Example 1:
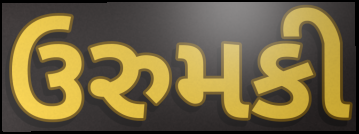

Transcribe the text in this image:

ઉરુમકી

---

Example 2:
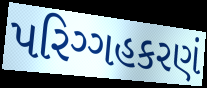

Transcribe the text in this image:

પરિગ્ગહકરણં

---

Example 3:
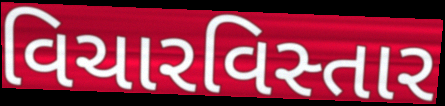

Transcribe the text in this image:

વિચારવિસ્તાર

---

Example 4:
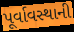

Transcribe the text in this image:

પૂર્વાવસ્થાની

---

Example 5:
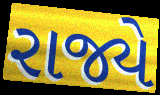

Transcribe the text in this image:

રાજ્યે